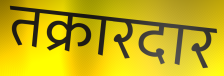
तक्रारदार